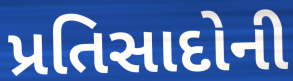
પ્રતિસાદોની